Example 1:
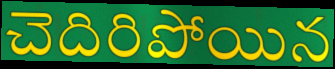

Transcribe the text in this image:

చెదిరిపోయిన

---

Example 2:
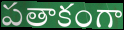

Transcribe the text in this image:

పతాకంగా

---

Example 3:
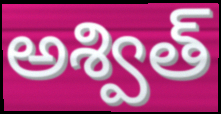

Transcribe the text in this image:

అశ్విత్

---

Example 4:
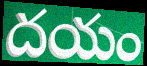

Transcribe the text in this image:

దయం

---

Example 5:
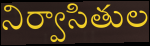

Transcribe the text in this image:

నిర్వాసితుల